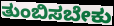
ತುಂಬಿಸಬೇಕು